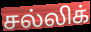
சல்லிக்